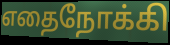
எதைநோக்கி